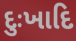
દુઃખાદિ